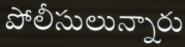
పోలీసులున్నారు